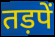
तड़पें